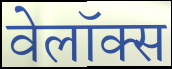
वेलॉक्स